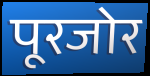
पूरजोर